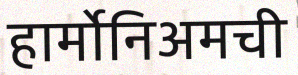
हार्मोनिअमची